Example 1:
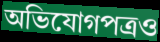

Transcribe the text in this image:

অভিযোগপত্রও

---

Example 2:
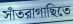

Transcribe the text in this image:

সাঁতরাগাছিতে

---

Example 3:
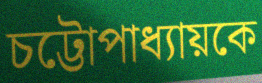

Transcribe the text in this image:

চট্টোপাধ্যায়কে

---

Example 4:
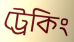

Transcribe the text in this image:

ট্রেকিং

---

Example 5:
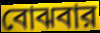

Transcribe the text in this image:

বোঝবার